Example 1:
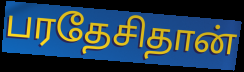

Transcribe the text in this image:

பரதேசிதான்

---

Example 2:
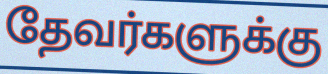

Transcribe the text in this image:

தேவர்களுக்கு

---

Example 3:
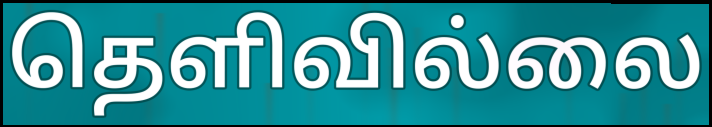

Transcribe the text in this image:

தெளிவில்லை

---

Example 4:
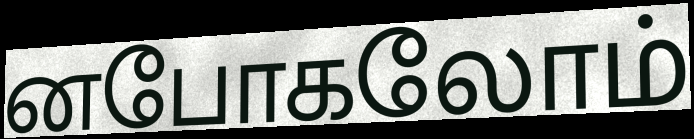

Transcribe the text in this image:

னபோகலோம்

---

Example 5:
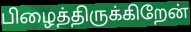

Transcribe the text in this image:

பிழைத்திருக்கிறேன்